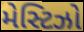
મેસ્ટિઝો